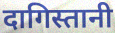
दागिस्तानी